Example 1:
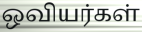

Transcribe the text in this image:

ஒவியர்கள்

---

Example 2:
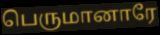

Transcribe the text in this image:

பெருமானாரே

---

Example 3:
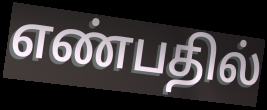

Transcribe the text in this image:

எண்பதில்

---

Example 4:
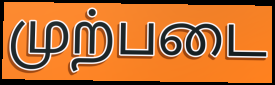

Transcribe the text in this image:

முற்படை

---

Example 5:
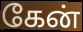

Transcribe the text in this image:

கேன்